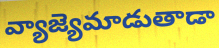
వ్యాజ్యెమాడుతాడా